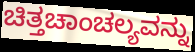
ಚಿತ್ತಚಾಂಚಲ್ಯವನ್ನು